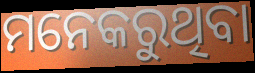
ମନେକରୁଥିବା